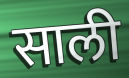
साली